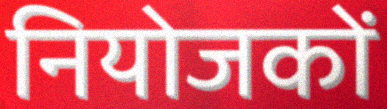
नियोजकों